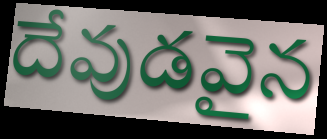
దేవుడవైన